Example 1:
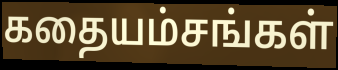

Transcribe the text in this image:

கதையம்சங்கள்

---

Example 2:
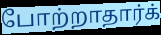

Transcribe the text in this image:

போற்றாதார்க்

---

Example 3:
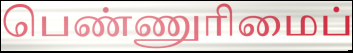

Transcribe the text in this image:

பெண்ணுரிமைப்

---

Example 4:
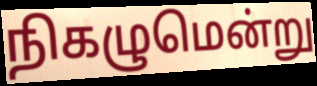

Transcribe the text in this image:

நிகழுமென்று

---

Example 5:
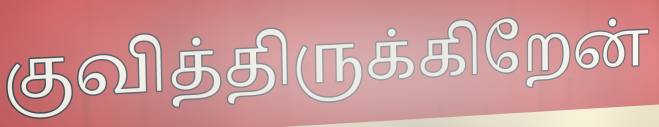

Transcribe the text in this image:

குவித்திருக்கிறேன்